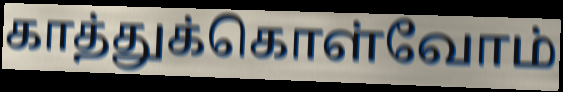
காத்துக்கொள்வோம்